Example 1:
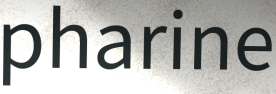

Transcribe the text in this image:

pharine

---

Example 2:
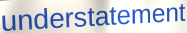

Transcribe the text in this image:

understatement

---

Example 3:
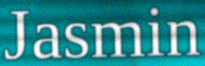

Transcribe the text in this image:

Jasmin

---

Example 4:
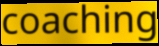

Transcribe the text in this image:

coaching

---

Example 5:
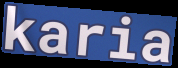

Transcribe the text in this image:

karia